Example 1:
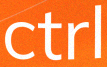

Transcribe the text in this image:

ctrl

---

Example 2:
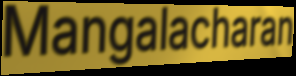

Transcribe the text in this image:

Mangalacharan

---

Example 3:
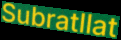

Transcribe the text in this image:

Subratllat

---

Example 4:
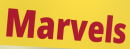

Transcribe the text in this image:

Marvels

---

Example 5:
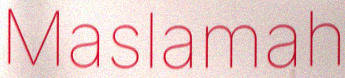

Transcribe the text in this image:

Maslamah